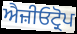
ਐਜ਼ੀਓਟ੍ਰੋਪ